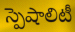
స్పెషాలిటీ